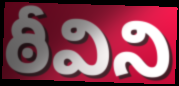
ఠీవిని